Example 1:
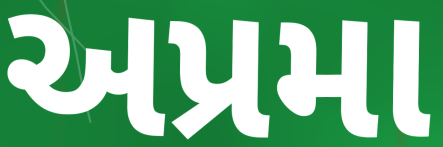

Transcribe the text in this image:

અપ્રમા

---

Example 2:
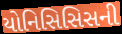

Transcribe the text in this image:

યોનિસિસિસની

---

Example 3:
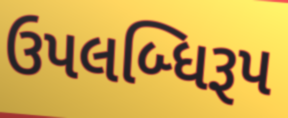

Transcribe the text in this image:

ઉપલબ્ધિરૂપ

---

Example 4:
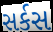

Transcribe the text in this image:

સર્કસ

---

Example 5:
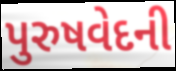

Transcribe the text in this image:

પુરુષવેદની